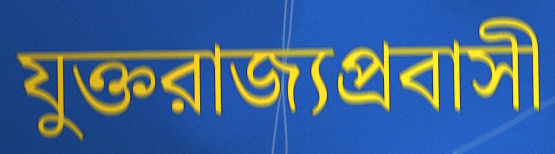
যুক্তরাজ্যপ্রবাসী